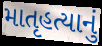
માતૃહત્યાનું